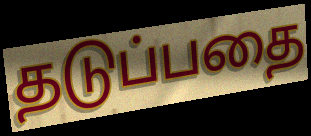
தடுப்பதை